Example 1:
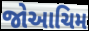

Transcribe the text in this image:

જોઆચિમ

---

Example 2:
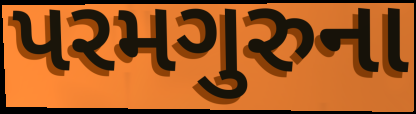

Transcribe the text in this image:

પરમગુરુના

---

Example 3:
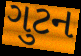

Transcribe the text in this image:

ગુટન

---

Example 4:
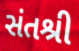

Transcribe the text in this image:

સંતશ્રી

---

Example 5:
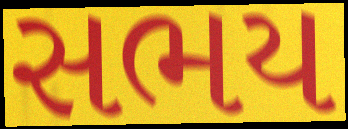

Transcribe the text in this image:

સભય